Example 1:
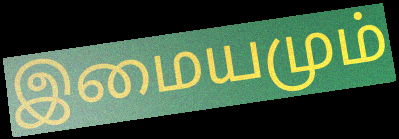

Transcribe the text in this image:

இமையமும்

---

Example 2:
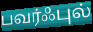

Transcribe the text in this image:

பவர்ஃபுல்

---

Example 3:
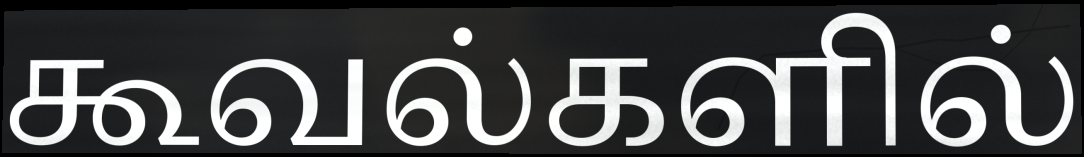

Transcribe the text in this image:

கூவல்களில்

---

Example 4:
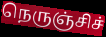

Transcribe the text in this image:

நெருஞ்சிச்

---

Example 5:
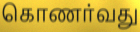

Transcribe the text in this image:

கொணர்வது